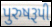
પુરુષરૂપી